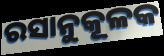
ରସାନୁକୂଳକ